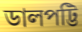
ডালপট্টি